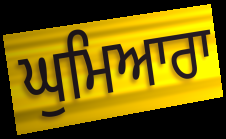
ਘੁਮਿਆਰਾ